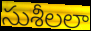
సుశీలలా